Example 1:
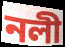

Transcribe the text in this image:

নলী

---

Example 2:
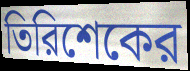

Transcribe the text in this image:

তিরিশেকের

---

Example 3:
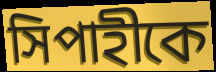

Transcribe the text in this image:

সিপাহীকে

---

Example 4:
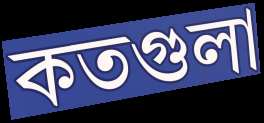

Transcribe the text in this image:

কতগুলা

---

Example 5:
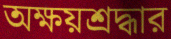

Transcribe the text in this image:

অক্ষয়শ্রদ্ধার